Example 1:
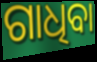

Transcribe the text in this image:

ଗାଧିବା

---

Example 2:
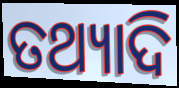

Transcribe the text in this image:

ତଥ୍ୟାଦି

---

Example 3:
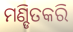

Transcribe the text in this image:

ମଣ୍ଡିତକରି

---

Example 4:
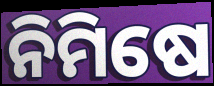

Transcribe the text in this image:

ନିମିଷେ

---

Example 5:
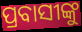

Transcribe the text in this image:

ପ୍ରବାସୀଙ୍କୁ